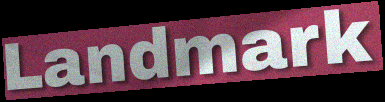
Landmark